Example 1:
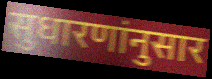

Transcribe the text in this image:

सुधारणांनुसार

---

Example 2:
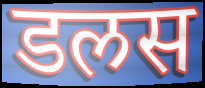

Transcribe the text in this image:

डलस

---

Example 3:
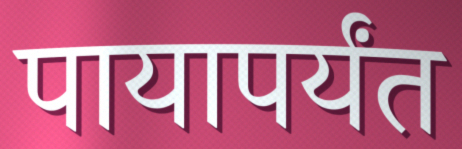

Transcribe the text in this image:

पायापर्यंत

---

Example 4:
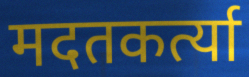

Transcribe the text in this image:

मदतकर्त्या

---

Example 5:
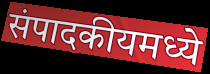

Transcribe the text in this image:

संपादकीयमध्ये